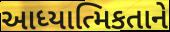
આધ્યાત્મિકતાને